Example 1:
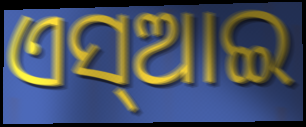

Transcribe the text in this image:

ଏସ୍ଆଇ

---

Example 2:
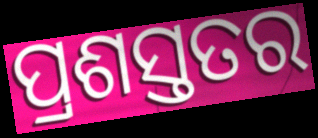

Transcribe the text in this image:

ପ୍ରଶସ୍ତତର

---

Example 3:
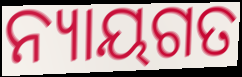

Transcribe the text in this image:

ନ୍ୟାୟଗତ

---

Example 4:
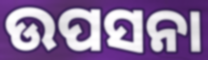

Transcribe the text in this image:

ଉପସନା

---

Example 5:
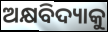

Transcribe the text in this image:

ଅକ୍ଷବିଦ୍ୟାକୁ